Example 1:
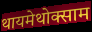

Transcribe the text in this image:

थायमेथोक्साम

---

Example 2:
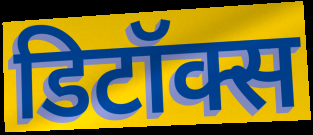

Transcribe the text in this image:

डिटॉक्स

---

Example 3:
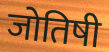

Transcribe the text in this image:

जोतिषी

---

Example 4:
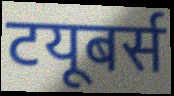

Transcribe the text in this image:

टयूबर्स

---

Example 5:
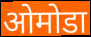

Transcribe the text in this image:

ओमोडा